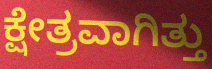
ಕ್ಷೇತ್ರವಾಗಿತ್ತು